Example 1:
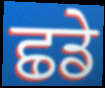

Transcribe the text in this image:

ਛਡੇ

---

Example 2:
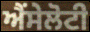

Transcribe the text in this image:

ਐਂਸੇਲੋਟੀ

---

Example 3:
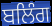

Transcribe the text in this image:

ਬਲਿੰਗ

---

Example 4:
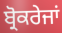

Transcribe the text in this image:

ਬ੍ਰੋਕਰੇਜਾਂ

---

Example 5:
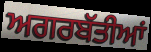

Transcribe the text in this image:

ਅਗਰਬੱਤੀਆਂ